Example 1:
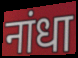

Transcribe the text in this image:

नांधा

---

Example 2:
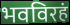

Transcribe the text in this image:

भवविरहं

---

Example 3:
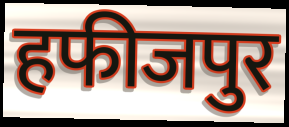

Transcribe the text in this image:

हफीजपुर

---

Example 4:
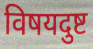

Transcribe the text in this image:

विषयदुष्ट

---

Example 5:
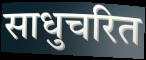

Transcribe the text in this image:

साधुचरित